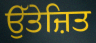
ਉੱਤੇਜ਼ਿਤ